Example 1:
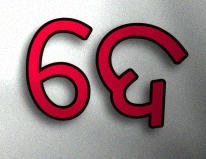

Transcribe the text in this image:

ଦେ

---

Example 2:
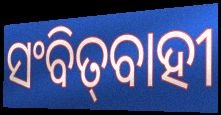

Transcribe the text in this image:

ସଂବିତ୍‌ବାହୀ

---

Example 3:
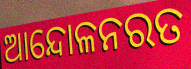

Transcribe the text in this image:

ଆନ୍ଦୋଳନରତ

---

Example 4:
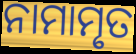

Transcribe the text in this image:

ନାମାମୃତ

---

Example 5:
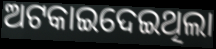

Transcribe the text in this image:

ଅଟକାଇଦେଇଥିଲା